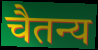
चैतन्य